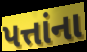
પત્તાંના